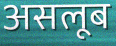
असलूब